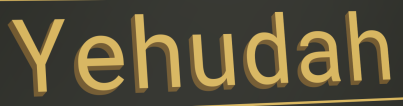
Yehudah